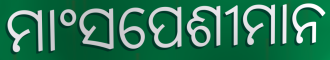
ମାଂସପେଶୀମାନ